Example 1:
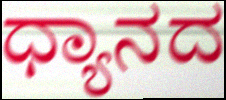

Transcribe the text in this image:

ಧ್ಯಾನದ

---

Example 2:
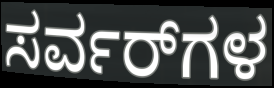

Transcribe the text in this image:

ಸರ್ವರ್‌ಗಳ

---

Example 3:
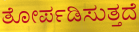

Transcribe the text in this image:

ತೋರ್ಪಡಿಸುತ್ತದೆ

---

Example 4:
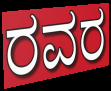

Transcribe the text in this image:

ರವರ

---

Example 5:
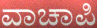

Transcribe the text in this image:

ವಾಚಾಪಿ